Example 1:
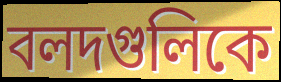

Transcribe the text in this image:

বলদগুলিকে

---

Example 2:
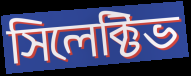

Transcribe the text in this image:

সিলেক্টিভ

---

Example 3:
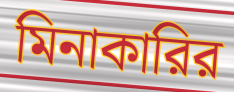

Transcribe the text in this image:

মিনাকারির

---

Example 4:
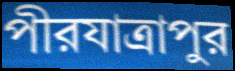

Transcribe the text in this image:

পীরযাত্রাপুর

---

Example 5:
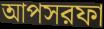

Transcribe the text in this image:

আপসরফা